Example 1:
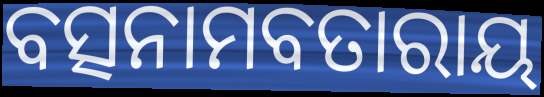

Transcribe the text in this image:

ବତ୍ସନାମବତାରାୟ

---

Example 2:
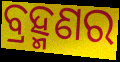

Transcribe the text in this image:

ବ୍ରହ୍ମଣର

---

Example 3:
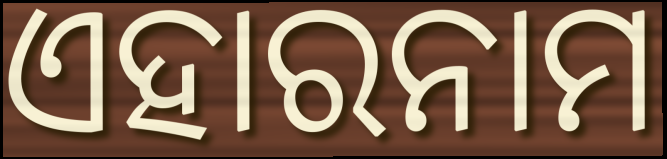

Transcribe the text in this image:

ଏହାରନାମ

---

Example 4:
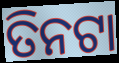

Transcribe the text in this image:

ତିନଟା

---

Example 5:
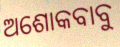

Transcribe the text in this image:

ଅଶୋକବାବୁ